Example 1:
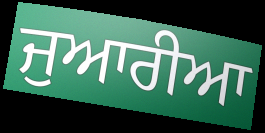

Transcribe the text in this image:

ਜੁਆਰੀਆ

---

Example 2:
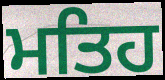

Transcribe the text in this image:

ਮਤਿਹ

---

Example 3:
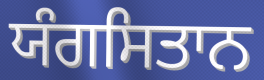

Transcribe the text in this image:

ਯੰਗਸਿਤਾਨ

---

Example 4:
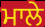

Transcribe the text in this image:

ਮਾਲੇ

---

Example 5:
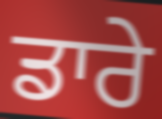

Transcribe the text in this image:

ਡਾਰੇ